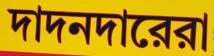
দাদনদারেরা